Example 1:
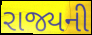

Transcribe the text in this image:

રાજ્યની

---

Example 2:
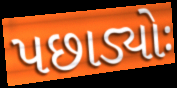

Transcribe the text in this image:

પછાડ્યોઃ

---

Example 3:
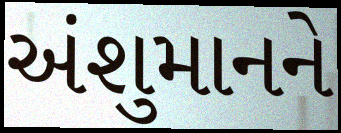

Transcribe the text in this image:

અંશુમાનને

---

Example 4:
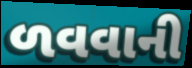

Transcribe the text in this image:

ળવવાની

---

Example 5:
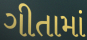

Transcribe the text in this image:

ગીતામાં